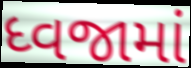
ધ્વજામાં